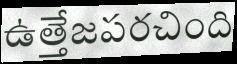
ఉత్తేజపరచింది